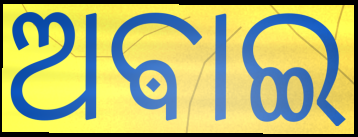
ଅଵାଇ